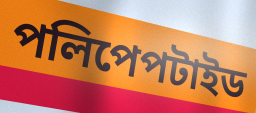
পলিপেপটাইড